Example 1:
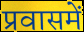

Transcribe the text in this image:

प्रवासमें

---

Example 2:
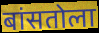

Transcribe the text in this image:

बांसतोला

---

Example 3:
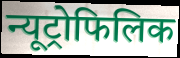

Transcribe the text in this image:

न्यूट्रोफिलिक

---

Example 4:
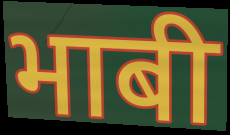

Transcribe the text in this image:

भाबी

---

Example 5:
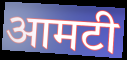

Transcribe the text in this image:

आमटी